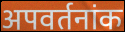
अपवर्तनांक